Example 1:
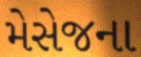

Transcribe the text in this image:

મેસેજના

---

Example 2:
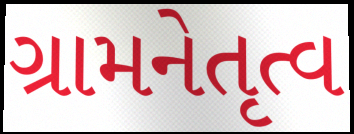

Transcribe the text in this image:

ગ્રામનેતૃત્વ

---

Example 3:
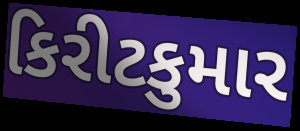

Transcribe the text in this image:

કિરીટકુમાર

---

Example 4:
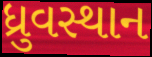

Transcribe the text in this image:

ધ્રુવસ્થાન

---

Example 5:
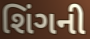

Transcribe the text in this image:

શિંગની